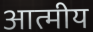
आत्मीय